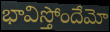
భావిస్తోందేమో